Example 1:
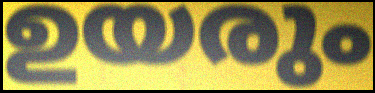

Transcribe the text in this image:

ഉയരും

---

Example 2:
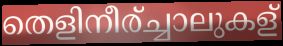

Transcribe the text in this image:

തെളിനീര്ച്ചാലുകള്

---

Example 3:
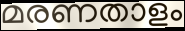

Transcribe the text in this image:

മരണതാളം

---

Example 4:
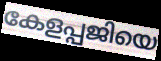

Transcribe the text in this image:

കേളപ്പജിയെ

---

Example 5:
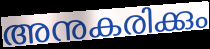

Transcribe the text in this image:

അനുകരിക്കും